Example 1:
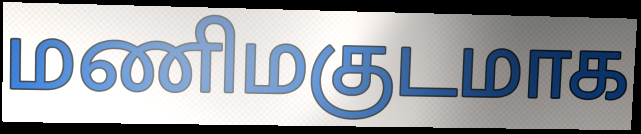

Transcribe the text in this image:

மணிமகுடமாக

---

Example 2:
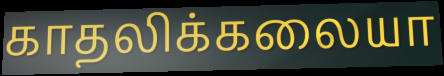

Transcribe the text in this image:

காதலிக்கலையா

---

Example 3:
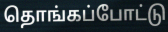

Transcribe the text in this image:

தொங்கப்போட்டு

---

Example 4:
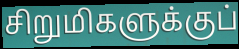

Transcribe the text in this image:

சிறுமிகளுக்குப்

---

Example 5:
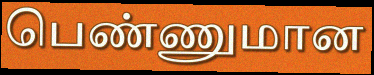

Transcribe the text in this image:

பெண்ணுமான